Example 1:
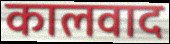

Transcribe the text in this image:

कालवाद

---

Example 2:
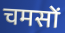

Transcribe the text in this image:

चमसों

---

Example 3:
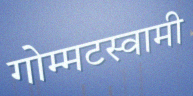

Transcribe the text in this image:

गोम्मटस्वामी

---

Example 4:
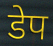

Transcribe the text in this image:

डेप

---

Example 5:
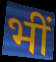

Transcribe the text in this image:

भीं